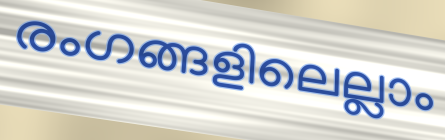
രംഗങ്ങളിലെല്ലാം